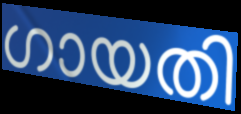
ഗായതി